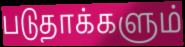
படுதாக்களும்